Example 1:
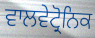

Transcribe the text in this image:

ਵਾਲਵੇਟ੍ਰੋਨਿਕ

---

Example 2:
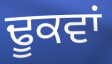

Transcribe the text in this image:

ਢੂਕਵਾਂ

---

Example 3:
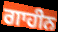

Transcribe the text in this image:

ਗਾਹੀਨ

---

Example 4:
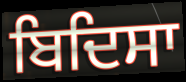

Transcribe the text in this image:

ਬਿਦਿਸਾ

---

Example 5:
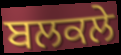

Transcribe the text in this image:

ਬਲਕਲੇ